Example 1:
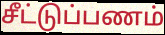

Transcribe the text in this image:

சீட்டுப்பணம்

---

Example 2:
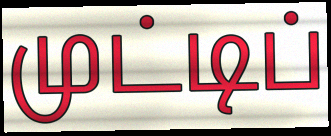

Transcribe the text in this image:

முட்டிப்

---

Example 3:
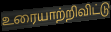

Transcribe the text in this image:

உரையாற்றிவிட்டு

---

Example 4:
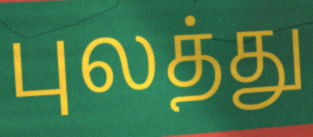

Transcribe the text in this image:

புலத்து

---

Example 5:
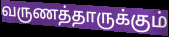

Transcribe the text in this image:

வருணத்தாருக்கும்